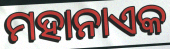
ମହାନାଏକ